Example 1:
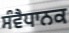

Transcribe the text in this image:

ਸੰਵੈਧਾਨਕ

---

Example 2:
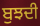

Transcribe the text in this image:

ਬੁਝਦੀ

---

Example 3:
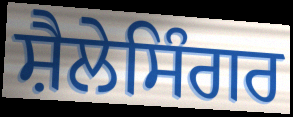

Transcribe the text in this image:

ਸ਼ੈਲੇਸਿੰਗਰ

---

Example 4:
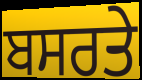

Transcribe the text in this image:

ਬਸਰਤੇ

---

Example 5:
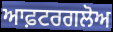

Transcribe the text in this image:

ਆਫ਼ਟਰਗਲੋਅ